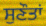
ਸੁਣੌਤਾਂ